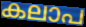
കലാപ